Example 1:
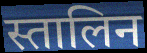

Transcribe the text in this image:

स्तालिन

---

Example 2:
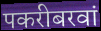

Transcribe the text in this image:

पकरीबरवां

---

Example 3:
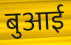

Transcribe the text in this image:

बुआई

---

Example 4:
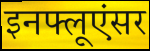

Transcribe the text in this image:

इनफ्लूएंसर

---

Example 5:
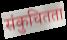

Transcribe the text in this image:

संकुचितता